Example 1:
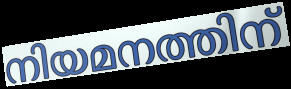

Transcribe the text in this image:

നിയമനത്തിന്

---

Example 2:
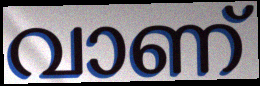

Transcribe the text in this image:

വാണ്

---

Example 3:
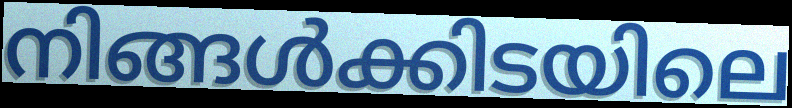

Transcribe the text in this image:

നിങ്ങൾക്കിടയിലെ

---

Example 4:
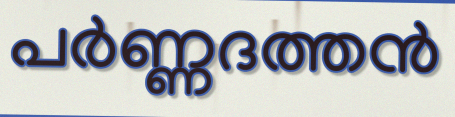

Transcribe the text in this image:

പർണ്ണദത്തൻ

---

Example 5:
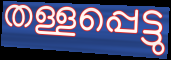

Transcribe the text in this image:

തള്ളപ്പെട്ടു